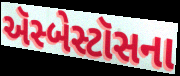
ઍસ્બેસ્ટૉસના